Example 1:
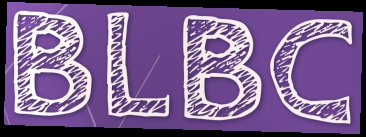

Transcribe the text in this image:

BLBC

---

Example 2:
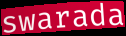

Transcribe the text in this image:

swarada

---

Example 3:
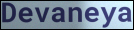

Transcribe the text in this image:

Devaneya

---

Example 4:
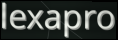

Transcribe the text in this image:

lexapro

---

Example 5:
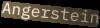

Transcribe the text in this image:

Angerstein